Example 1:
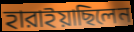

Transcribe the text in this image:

হারাইয়াছিলেন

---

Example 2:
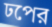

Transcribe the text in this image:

ঢপের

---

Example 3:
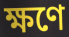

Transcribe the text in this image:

ক্ষণে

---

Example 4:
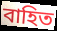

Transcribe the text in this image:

বাহিত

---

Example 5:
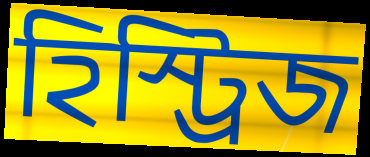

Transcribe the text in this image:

হিস্ট্রিজ